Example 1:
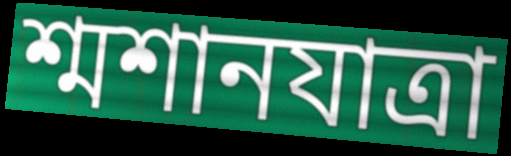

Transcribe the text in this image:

শ্মশানযাত্রা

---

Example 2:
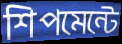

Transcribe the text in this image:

শিপমেন্টে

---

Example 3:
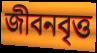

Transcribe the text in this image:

জীবনবৃত্ত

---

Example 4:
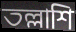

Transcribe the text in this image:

তল্লাশি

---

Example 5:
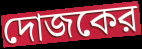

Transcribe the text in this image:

দোজকের